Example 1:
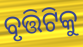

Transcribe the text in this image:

ବୃତ୍ତିଟିକୁ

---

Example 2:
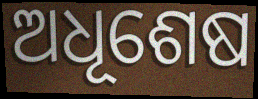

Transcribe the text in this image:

ଅଧୂଶେଷ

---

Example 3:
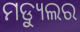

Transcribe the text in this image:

ମଡ୍ୟୁଲର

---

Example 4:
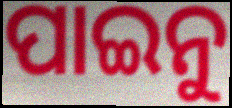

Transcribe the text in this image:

ପାଇନୁ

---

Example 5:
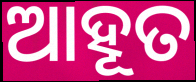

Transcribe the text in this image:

ଆହୂତ